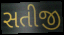
સતીજી